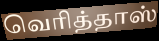
வெரித்தாஸ்